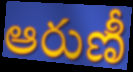
ఆరుణీ